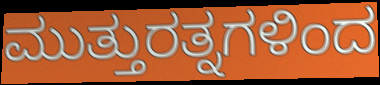
ಮುತ್ತುರತ್ನಗಳಿಂದ